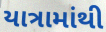
યાત્રામાંથી